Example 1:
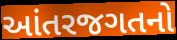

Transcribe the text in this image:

આંતરજગતનો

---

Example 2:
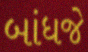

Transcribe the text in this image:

બાંધજે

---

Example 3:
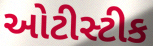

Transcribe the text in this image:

ઓટીસ્ટીક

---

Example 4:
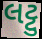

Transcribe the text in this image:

લટ્ટુ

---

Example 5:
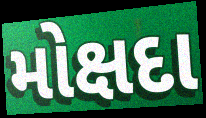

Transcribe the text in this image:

મોક્ષદા